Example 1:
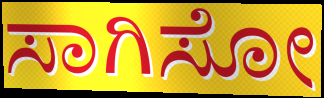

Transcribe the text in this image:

ಸಾಗಿಸೋ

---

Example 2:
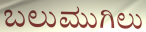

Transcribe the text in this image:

ಬಲುಮುಗಿಲು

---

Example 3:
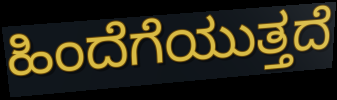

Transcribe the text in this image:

ಹಿಂದೆಗೆಯುತ್ತದೆ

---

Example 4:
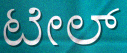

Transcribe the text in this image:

ಟೇಲ್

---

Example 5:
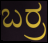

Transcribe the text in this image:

ಬರ್ರ